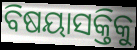
ବିଷୟାସକ୍ତିକୁ